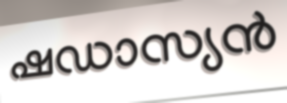
ഷഡാസ്യൻ